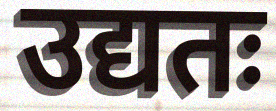
उद्यतः